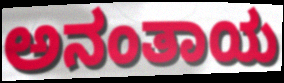
ಅನಂತಾಯ